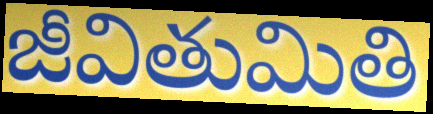
జీవితుమితి